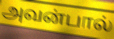
அவன்பால்